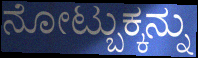
ನೋಟ್ಬುಕ್ಕನ್ನು